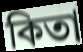
কিতা